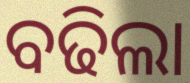
ବଢିଲା